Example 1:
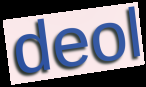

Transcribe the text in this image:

deol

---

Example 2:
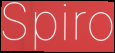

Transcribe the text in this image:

Spiro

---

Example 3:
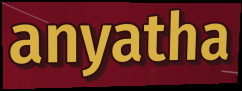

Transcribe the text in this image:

anyatha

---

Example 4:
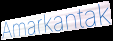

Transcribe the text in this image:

Amarkantak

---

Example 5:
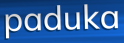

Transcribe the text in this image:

paduka